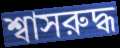
শ্বাসরুদ্ধ